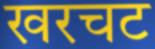
खरचट